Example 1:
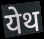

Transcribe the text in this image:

येथ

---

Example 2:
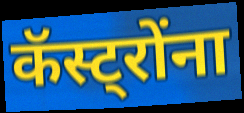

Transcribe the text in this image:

कॅस्ट्रोंना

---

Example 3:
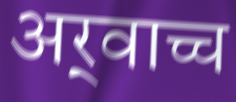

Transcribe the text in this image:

अर्वाच्च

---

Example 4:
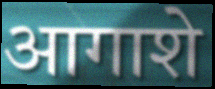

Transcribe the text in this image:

आगाशे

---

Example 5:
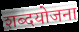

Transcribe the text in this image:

शब्दयोजना